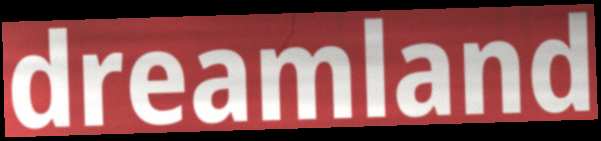
dreamland